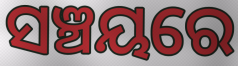
ସଞ୍ଚୟରେ